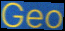
Geo